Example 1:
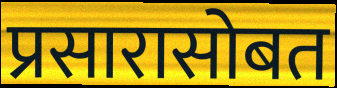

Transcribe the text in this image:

प्रसारासोबत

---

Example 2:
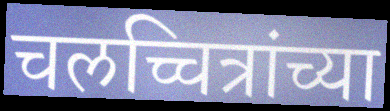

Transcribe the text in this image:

चलच्चित्रांच्या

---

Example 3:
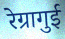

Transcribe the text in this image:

रेग्रागुई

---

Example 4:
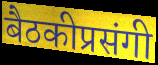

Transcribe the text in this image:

बैठकीप्रसंगी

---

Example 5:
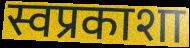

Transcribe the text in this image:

स्वप्रकाशा